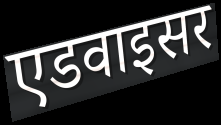
एडवाइसर